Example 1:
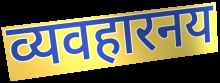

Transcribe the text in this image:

व्यवहारनय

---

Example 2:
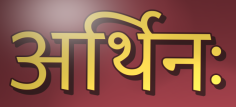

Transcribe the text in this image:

अर्थिनः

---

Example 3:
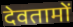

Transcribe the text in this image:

देवतामों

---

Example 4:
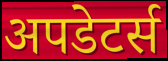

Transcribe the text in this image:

अपडेटर्स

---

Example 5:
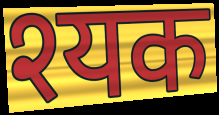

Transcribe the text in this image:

श्यक